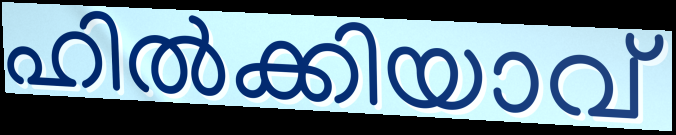
ഹിൽക്കിയാവ്